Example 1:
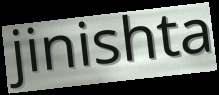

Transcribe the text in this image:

jinishta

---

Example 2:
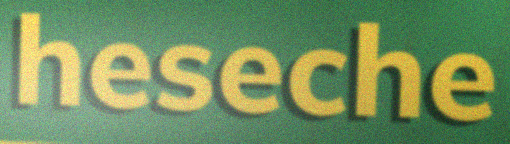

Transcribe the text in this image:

heseche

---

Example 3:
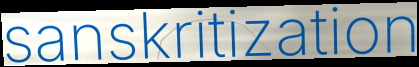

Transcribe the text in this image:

sanskritization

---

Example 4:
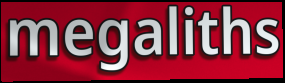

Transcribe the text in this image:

megaliths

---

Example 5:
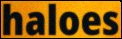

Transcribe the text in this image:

haloes